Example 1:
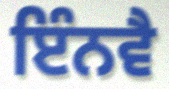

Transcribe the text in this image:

ਇੰਨਵੈ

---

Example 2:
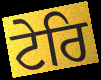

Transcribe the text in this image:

ਟੇਰਿ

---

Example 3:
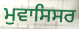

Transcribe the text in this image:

ਮੁਵਾਸਿਸਰ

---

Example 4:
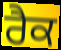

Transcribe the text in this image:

ਰੈਕ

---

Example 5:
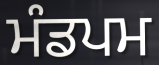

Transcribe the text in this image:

ਮੰਡਪਮ